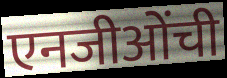
एनजीओंची